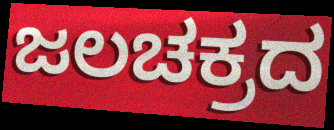
ಜಲಚಕ್ರದ